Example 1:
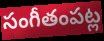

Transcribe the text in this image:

సంగీతంపట్ల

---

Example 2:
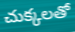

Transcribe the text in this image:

చుక్కలతో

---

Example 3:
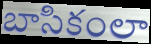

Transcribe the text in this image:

బాసికంలా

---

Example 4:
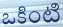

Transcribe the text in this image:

ఒకింటి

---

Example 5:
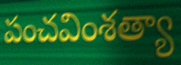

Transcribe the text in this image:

పంచవింశత్యా